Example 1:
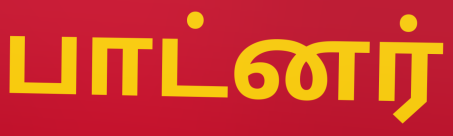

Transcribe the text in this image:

பாட்னர்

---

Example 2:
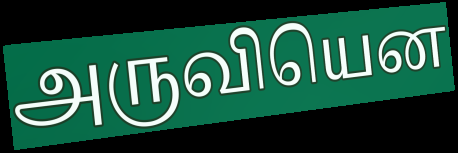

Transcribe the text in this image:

அருவியென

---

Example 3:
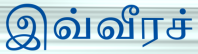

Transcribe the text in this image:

இவ்வீரச்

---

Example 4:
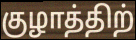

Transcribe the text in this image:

குழாத்திற்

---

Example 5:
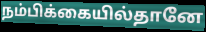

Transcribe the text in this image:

நம்பிக்கையில்தானே